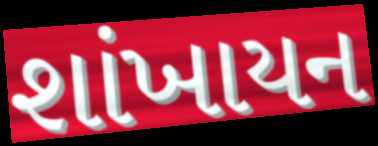
શાંખાયન